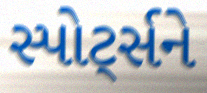
સ્પોર્ટ્સને